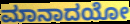
ಮಾನಾದಯೋ